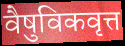
वैषुविकवृत्त